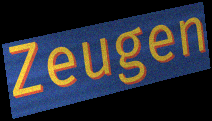
Zeugen